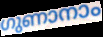
ഗുണാനാം